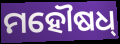
ମହୌଷଧ୍